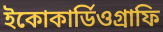
ইকোকার্ডিওগ্রাফি